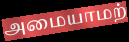
அமையாமற்